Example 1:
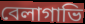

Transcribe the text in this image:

বেলাগাভি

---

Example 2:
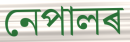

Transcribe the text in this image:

নেপালৰ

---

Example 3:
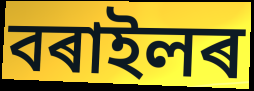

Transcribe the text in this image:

বৰাইলৰ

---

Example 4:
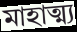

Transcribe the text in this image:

মাহাত্ম্য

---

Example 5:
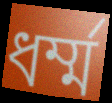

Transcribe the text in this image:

ধৰ্ম্ম